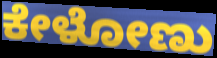
ಕೇಳೋಣು